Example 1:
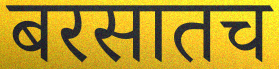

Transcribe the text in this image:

बरसातच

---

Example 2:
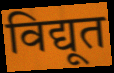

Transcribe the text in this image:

विद्यूत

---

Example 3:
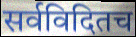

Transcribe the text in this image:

सर्वविदितच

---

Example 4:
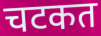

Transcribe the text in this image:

चटकत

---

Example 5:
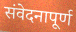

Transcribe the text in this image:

संवेदनापूर्ण